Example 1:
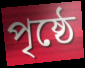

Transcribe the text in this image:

পৃষ্ঠে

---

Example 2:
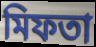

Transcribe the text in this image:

মিফতা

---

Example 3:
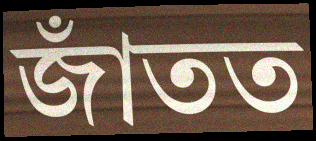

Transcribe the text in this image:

জাঁতত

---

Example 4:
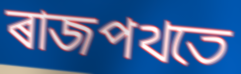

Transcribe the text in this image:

ৰাজপথতে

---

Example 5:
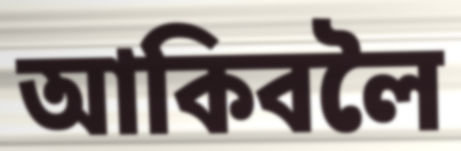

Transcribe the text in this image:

আকিবলৈ